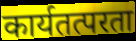
कार्यतत्परता